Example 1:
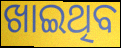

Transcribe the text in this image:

ଖାଇଥିବ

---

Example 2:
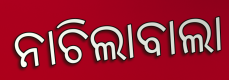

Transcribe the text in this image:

ନାଚିଲାବାଲା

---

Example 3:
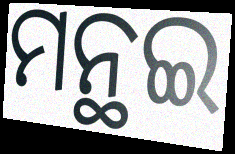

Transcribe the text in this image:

ମନ୍ଥଇ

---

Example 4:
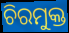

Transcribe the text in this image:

ଚିରମୁକ୍ତ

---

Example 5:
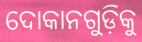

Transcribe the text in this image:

ଦୋକାନଗୁଡ଼ିକୁ